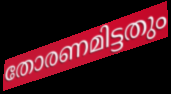
തോരണമിട്ടതും